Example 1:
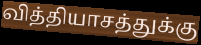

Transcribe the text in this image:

வித்தியாசத்துக்கு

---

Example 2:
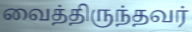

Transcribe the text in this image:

வைத்திருந்தவர்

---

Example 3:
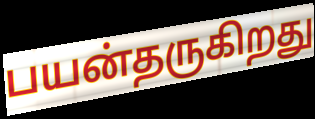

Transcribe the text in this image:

பயன்தருகிறது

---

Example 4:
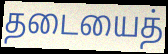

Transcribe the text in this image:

தடையைத்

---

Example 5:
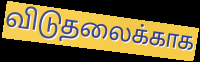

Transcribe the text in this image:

விடுதலைக்காக